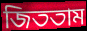
জিততাম